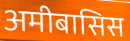
अमीबासिस